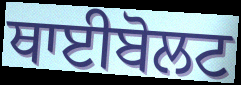
ਥਾਈਬੋਲਟ